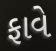
ફાવે